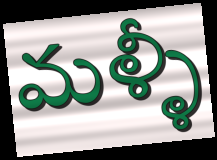
మళ్ళీ